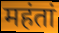
महंतां